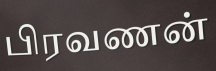
பிரவணன்